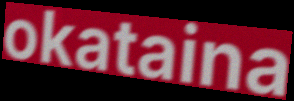
okataina